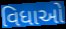
વિધાઓ